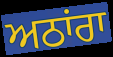
ਅਠਾਂਰਾ